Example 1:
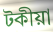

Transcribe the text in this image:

টকীয়া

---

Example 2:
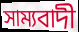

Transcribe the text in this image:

সাম্যবাদী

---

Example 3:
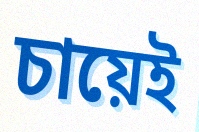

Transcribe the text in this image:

চায়েই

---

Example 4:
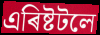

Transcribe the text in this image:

এৰিষ্টটলে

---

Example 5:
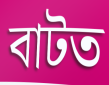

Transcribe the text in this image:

বাটত